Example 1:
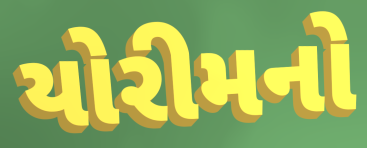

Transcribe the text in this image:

યોરીમનો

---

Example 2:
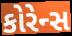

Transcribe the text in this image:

કોરેન્સ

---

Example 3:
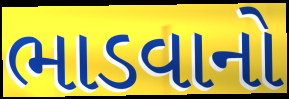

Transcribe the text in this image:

ભાડવાનો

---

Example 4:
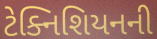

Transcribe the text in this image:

ટેક્નિશિયનની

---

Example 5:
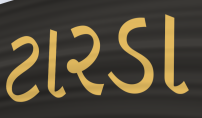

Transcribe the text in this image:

ટારડા